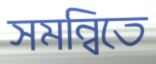
সমন্বিতে